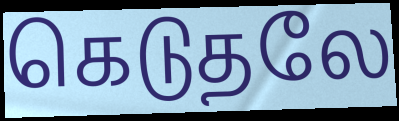
கெடுதலே